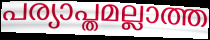
പര്യാപ്തമല്ലാത്ത